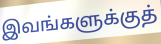
இவங்களுக்குத்